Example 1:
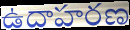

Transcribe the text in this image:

ఉదాహరణ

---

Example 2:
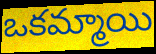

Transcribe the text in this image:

ఒకమ్మాయి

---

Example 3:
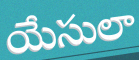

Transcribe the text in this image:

యేసులా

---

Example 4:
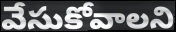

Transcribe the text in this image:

వేసుకోవాలని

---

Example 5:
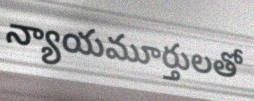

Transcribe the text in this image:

న్యాయమూర్తులతో